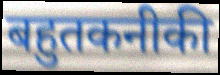
बहुतकनीकी